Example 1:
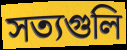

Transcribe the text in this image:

সত্যগুলি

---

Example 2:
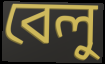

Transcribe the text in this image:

বেলু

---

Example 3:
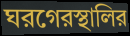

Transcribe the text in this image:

ঘরগেরস্থালির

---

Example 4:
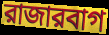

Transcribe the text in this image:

রাজারবাগ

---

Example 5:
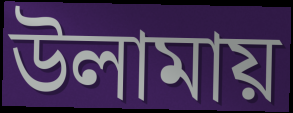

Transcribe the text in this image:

উলামায়